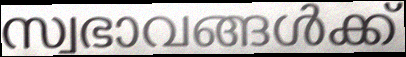
സ്വഭാവങ്ങൾക്ക്